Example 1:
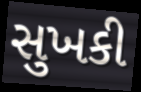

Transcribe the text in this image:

સુખકી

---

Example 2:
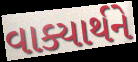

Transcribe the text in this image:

વાક્યાર્થને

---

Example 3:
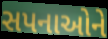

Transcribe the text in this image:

સપનાઓને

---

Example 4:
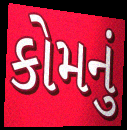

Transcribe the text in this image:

કોમનું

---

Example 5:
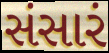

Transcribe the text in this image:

સંસારં